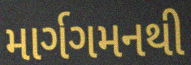
માર્ગગમનથી